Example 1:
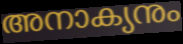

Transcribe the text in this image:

അനാക്യനും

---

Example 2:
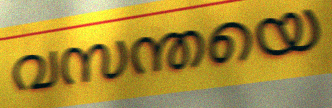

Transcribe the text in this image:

വസന്തയെ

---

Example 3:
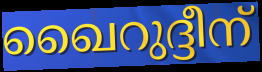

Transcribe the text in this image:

ഖൈറുദ്ദീന്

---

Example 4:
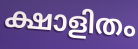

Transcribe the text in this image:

ക്ഷാളിതം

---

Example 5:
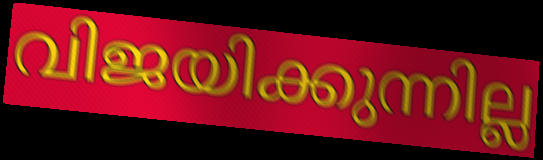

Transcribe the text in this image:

വിജയിക്കുന്നില്ല